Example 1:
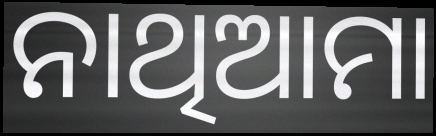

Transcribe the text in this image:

ନାଥିଆମା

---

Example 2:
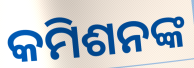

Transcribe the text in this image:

କମିଶନଙ୍କ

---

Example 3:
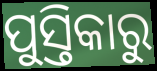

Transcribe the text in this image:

ପୁସ୍ତିକାରୁ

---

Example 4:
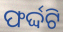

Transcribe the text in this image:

ଫର୍ଦ୍ଦଟି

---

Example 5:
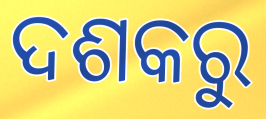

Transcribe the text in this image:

ଦଶକରୁ